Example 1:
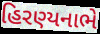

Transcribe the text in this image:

હિરણ્યનાભે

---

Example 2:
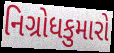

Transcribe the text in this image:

નિગ્રોધકુમારો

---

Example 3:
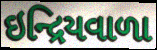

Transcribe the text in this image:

ઇન્દ્રિયવાળા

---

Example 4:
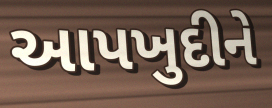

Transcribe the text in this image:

આપખુદીને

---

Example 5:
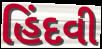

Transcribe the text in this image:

હિંદવી